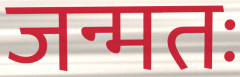
जन्मतः